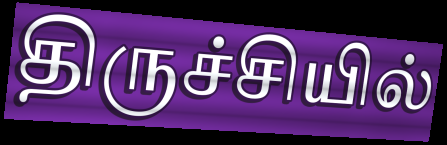
திருச்சியில்